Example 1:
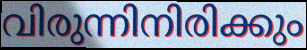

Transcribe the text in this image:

വിരുന്നിനിരിക്കും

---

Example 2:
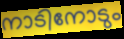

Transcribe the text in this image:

നാടിനോടും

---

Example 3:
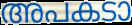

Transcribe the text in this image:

അപകടാ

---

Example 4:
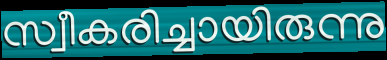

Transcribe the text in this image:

സ്വീകരിച്ചായിരുന്നു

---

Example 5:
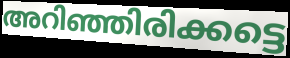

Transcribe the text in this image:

അറിഞ്ഞിരിക്കട്ടെ